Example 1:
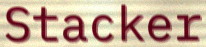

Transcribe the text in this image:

Stacker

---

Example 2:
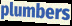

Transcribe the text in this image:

plumbers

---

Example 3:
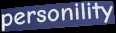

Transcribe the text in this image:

personility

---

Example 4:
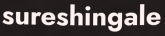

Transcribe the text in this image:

sureshingale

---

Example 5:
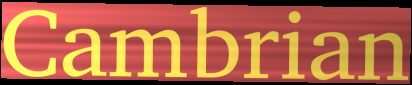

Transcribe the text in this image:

Cambrian